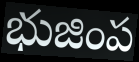
భుజింప